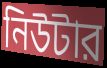
নিউটার